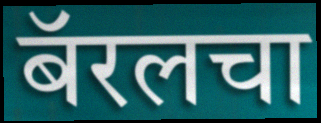
बॅरलचा